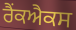
ਰੈਂਕਐਕਸ